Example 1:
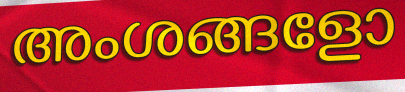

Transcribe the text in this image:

അംശങ്ങളോ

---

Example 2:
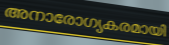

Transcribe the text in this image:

അനാരോഗ്യകരമായി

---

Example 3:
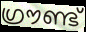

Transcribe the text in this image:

ഗ്രൗണ്ട്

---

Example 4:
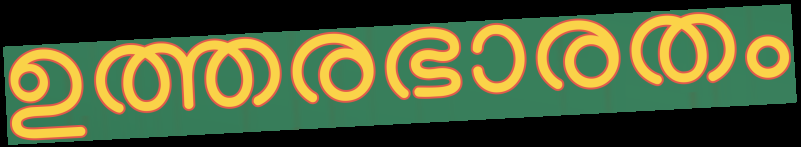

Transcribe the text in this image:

ഉത്തരഭാരതം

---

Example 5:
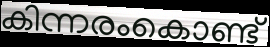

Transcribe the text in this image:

കിന്നരംകൊണ്ട്